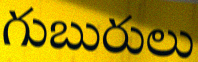
గుబురులు